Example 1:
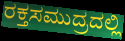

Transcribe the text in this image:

ರಕ್ತಸಮುದ್ರದಲ್ಲಿ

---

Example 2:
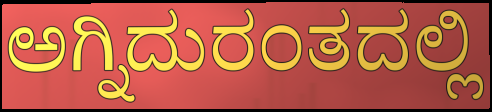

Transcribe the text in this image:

ಅಗ್ನಿದುರಂತದಲ್ಲಿ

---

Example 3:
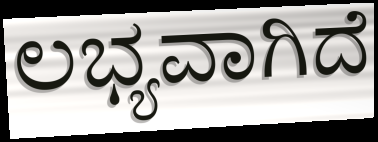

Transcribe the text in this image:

ಲಭ್ಯವಾಗಿದೆ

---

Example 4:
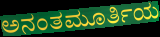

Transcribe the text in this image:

ಅನಂತಮೂರ್ತಿಯ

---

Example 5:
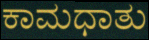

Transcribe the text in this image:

ಕಾಮಧಾತು